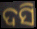
ଦସି